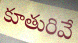
కూతురివే